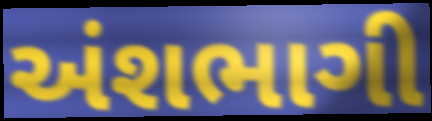
અંશભાગી